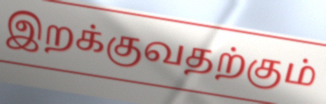
இறக்குவதற்கும்